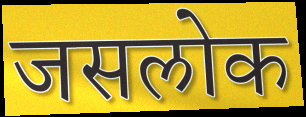
जसलोक